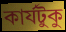
কার্যটুকু